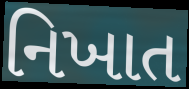
નિખાત